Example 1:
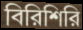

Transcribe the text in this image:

বিরিশিরি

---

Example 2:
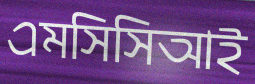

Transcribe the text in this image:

এমসিসিআই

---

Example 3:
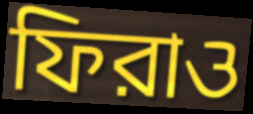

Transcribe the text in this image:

ফিরাও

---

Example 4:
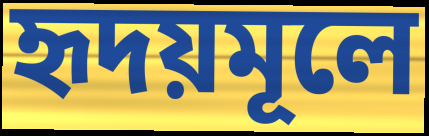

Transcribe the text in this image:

হৃদয়মূলে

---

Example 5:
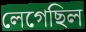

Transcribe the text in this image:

লেগেছিল